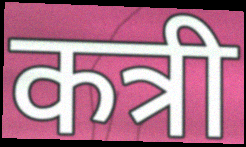
कत्री